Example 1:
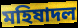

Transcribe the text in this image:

মহিষাদল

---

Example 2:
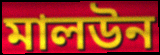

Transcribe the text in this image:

মালউন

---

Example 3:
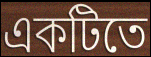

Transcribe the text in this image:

একটিতে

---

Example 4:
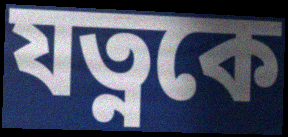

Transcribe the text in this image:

যত্নকে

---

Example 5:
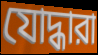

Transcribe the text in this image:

যোদ্ধারা